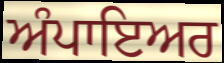
ਅੰਪਾਇਅਰ